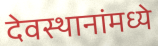
देवस्थानांमध्ये